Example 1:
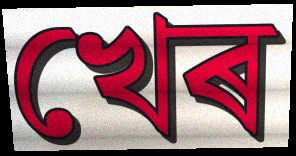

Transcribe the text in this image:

খেৰ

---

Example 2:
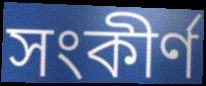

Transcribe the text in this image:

সংকীৰ্ণ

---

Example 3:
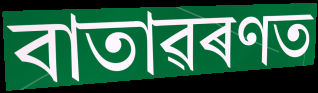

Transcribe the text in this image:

বাতাৱৰণত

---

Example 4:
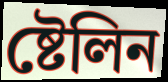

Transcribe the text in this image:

ষ্টেলিন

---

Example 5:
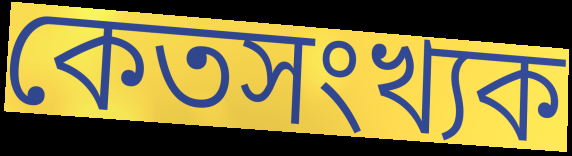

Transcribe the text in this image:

কেতসংখ্যক